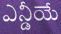
ఎన్డీయే